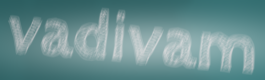
vadivam